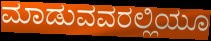
ಮಾಡುವವರಲ್ಲಿಯೂ